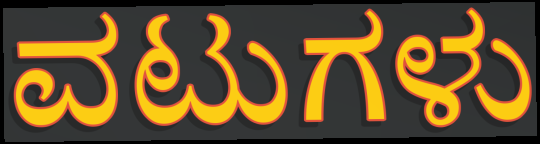
ವಟುಗಳು